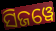
ସିଜୱେ